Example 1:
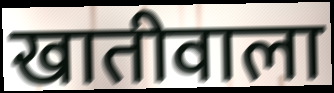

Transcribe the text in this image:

खातीवाला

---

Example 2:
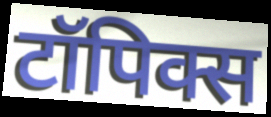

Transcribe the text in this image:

टॉपिक्स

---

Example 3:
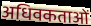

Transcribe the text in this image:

अधिवकताओं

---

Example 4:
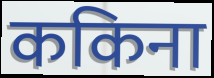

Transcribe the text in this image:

ककिना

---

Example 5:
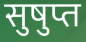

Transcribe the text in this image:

सुषुप्त